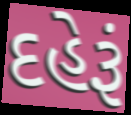
દહેરૂં